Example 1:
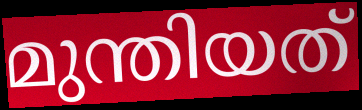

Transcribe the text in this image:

മുന്തിയത്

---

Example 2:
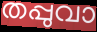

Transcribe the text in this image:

തപ്പുവാ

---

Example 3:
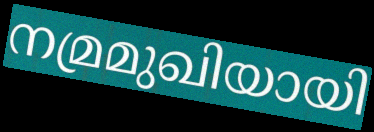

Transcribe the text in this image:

നമ്രമുഖിയായി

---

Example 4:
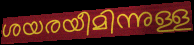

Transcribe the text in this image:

ശയരയീമിന്നുള്ള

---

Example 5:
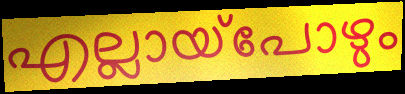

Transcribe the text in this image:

എല്ലായ്‌പോഴും